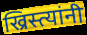
ख्रिस्त्यांनी